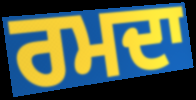
ਰਮਦਾ